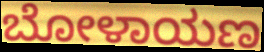
ಬೋಳಾಯಣ